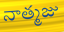
నాత్మజు